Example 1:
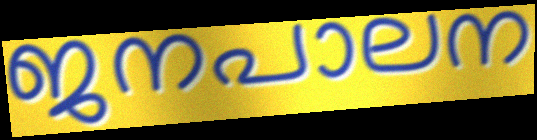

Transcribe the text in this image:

ജനപാലന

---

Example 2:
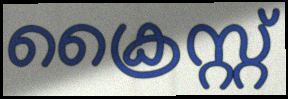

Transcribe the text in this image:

ക്രൈസ്റ്റ്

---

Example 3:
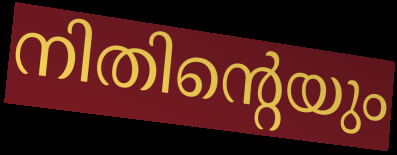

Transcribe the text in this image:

നിതിന്റെയും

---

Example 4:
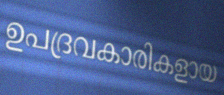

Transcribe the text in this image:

ഉപദ്രവകാരികളായ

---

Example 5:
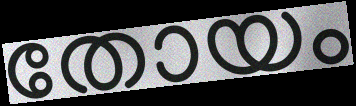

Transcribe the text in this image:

തോയം